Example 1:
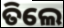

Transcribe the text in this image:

ତିଲେ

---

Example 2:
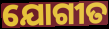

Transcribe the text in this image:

ଯୋଗୀତ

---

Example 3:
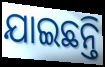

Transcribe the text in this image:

ଯାଇଛନ୍ତି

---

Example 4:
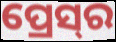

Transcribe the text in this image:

ପ୍ରେସ୍‌ର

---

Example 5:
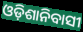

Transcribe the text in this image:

ଓଡ଼ିଶାନିବାସୀ